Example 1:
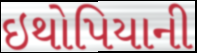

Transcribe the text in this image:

ઇથોપિયાની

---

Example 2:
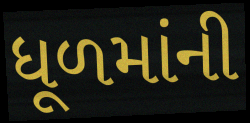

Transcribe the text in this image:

ધૂળમાંની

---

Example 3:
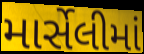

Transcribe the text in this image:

માર્સેલીમાં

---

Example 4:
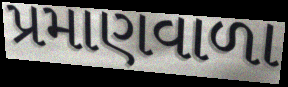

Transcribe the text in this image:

પ્રમાણવાળા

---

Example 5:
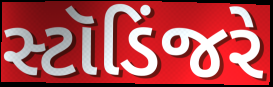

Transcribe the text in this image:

સ્ટૉડિંજરે